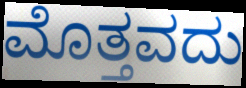
ಮೊತ್ತವದು